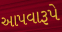
આપવારૂપે